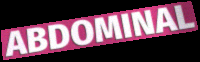
ABDOMINAL